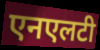
एनएलटी